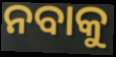
ନବାକୁ